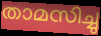
താമസിച്ചു